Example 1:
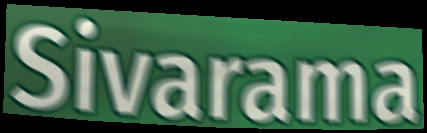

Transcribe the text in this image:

Sivarama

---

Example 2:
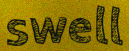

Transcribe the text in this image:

swell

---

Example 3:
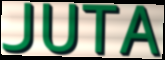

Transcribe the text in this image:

JUTA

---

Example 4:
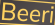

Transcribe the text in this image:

Beeri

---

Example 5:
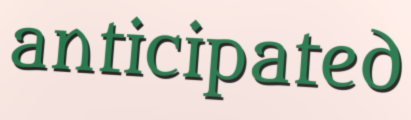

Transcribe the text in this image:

anticipated